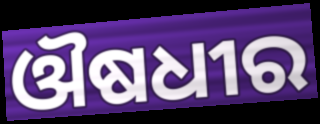
ଔଷଧୀର